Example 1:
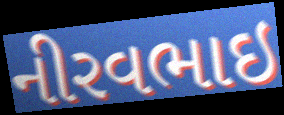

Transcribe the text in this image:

નીરવભાઇ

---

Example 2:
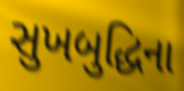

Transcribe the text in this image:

સુખબુદ્ધિના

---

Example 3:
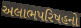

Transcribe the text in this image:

અલાભપરિષહનો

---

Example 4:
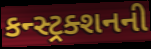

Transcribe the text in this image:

કન્સ્ટ્રક્શનની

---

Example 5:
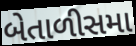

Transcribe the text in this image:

બેતાળીસમા